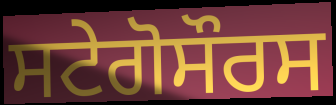
ਸਟੇਗੋਸੌਰਸ